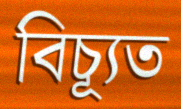
বিচ্যূত